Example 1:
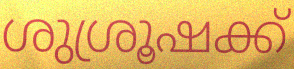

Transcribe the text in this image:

ശുശ്രൂഷക്ക്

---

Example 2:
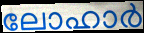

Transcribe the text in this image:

ലോഹാർ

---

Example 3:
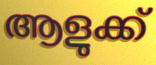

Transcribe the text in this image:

ആളുക്ക്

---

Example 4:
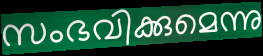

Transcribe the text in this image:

സംഭവിക്കുമെന്നു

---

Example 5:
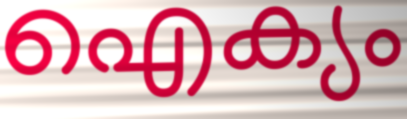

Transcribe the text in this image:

ഐക്യം